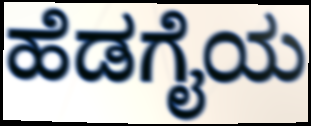
ಹೆಡಗೈಯ